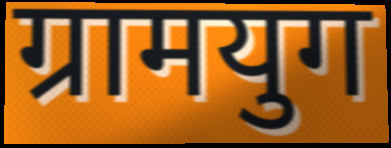
ग्रामयुग